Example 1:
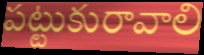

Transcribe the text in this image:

పట్టుకురావాలి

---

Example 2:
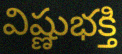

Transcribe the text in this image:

విష్ణుభక్తి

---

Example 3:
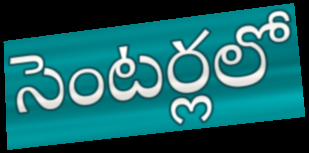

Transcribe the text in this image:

సెంటర్లలో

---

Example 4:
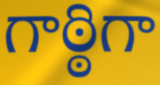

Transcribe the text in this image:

గాఠ్ఠిగా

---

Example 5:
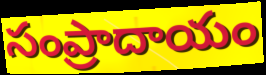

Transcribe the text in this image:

సంప్రాదాయం